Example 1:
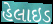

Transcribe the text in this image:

હેલાઇડ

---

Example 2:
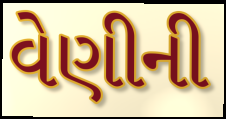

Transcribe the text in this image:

વેણીની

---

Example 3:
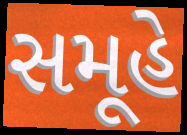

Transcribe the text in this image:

સમૂહે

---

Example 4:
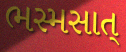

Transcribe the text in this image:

ભસ્મસાત્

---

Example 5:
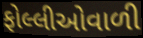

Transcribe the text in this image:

ફોલ્લીઓવાળી